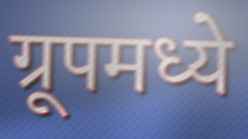
ग्रूपमध्ये